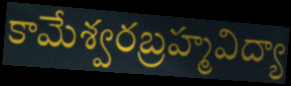
కామేశ్వరబ్రహ్మవిద్యా